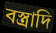
বস্ত্রাদি